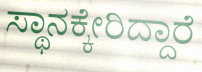
ಸ್ಥಾನಕ್ಕೇರಿದ್ದಾರೆ